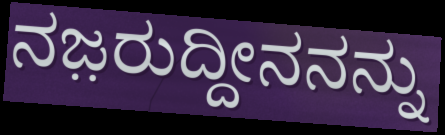
ನಜ಼ರುದ್ದೀನನನ್ನು